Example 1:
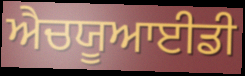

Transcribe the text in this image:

ਐਚਯੂਆਈਡੀ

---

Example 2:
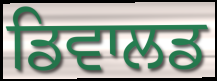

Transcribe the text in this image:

ਡਿਵਾਲਡ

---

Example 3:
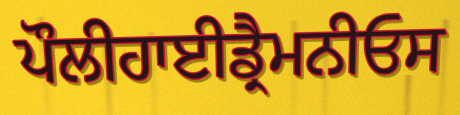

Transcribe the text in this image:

ਪੌਲੀਹਾਈਡ੍ਰੈਮਨੀਓਸ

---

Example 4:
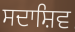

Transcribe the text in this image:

ਸਦਾਸ਼ਿਵ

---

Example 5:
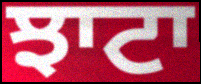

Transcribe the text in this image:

ਝਾਟਾ